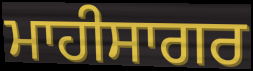
ਮਾਹੀਸਾਗਰ